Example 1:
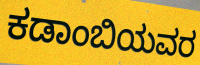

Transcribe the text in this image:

ಕಡಾಂಬಿಯವರ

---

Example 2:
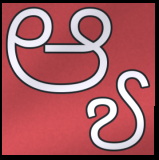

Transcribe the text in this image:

ಆ್ಯ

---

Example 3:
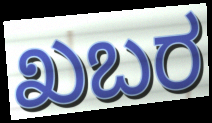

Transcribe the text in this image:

ಖಬರ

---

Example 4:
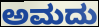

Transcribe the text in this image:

ಅಮದು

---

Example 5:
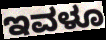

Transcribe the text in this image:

ಇವಳೂ